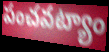
పంచవట్యాం